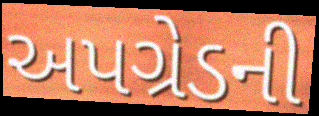
અપગ્રેડની